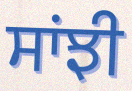
ਸਾਂਝੀ